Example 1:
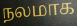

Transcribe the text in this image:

நலமாக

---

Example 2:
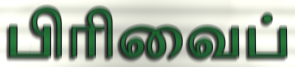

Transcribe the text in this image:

பிரிவைப்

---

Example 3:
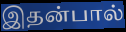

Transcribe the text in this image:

இதன்பால்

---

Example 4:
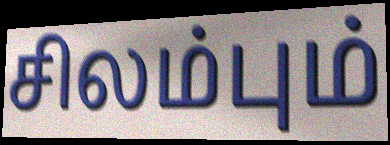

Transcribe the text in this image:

சிலம்பும்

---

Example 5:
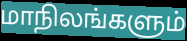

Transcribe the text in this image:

மாநிலங்களும்